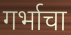
गर्भाचा